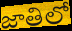
జాతిలో